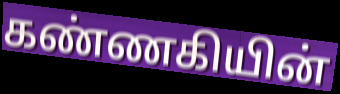
கண்ணகியின்